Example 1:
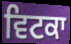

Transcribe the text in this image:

ਵਿਟਕਾ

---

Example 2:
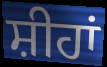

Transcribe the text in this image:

ਸ਼ੀਹਾਂ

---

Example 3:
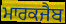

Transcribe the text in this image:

ਮਾਰਕਜੈਬ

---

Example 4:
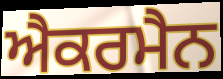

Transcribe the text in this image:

ਐਕਰਮੈਨ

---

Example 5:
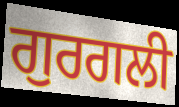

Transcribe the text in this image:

ਗੁਰਗਲੀ